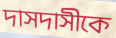
দাসদাসীকে